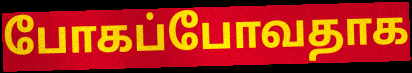
போகப்போவதாக